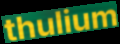
thulium